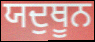
ਯਦੁਥੂਨ